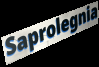
Saprolegnia